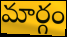
మార్గం